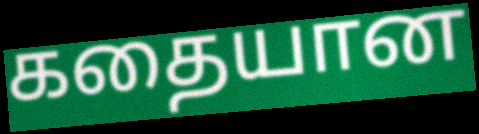
கதையான